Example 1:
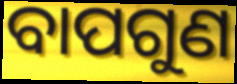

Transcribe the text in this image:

ବାପଗୁଣ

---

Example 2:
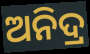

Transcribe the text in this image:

ଅନିଦ୍ର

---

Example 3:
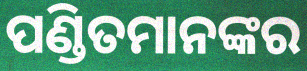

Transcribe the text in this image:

ପଣ୍ଡିତମାନଙ୍କର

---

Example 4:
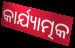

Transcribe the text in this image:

କାର୍ଯ୍ୟାତ୍ମକ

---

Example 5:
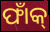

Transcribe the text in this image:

ଫାଁକ୍